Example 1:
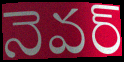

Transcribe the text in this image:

నెవర్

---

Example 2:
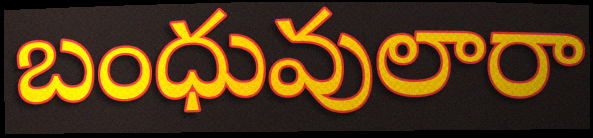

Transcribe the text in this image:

బంధువులారా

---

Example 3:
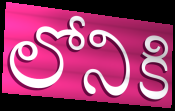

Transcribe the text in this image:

లోనికి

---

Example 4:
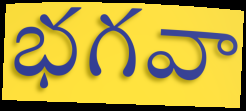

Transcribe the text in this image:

భగవా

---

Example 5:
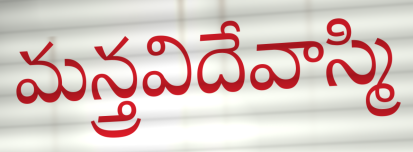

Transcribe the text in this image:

మన్త్రవిదేవాస్మి